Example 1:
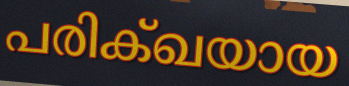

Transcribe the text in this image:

പരിക്ഖയായ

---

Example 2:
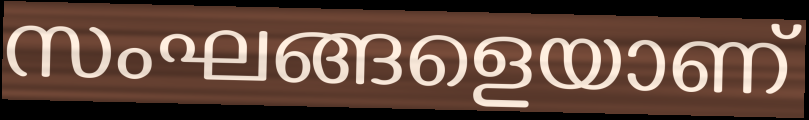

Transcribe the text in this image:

സംഘങ്ങളെയാണ്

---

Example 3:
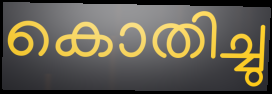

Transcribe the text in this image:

കൊതിച്ചു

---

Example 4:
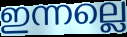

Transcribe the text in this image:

ഇന്നല്ലെ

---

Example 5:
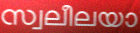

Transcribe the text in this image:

സ്വലീലയാ